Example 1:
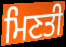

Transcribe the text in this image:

ਮਿਣਤੀ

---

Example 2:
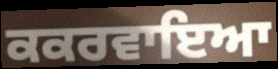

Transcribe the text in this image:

ਕਕਰਵਾਇਆ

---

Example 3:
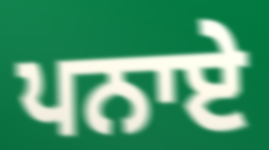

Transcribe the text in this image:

ਪਨਾਏ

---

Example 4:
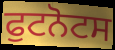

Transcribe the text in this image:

ਫੁਟਨੋਟਸ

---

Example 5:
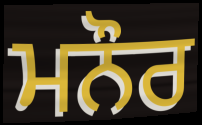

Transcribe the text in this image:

ਮਨੌਰ